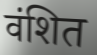
वंशित